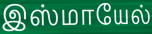
இஸ்மாயேல்